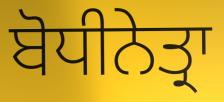
ਬੋਧੀਨੇਤ੍ਰਾ